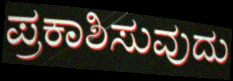
ಪ್ರಕಾಶಿಸುವುದು